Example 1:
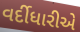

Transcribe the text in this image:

વર્દીધારીએ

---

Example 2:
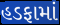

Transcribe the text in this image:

હડફામાં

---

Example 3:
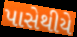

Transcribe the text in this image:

પાસેથીયે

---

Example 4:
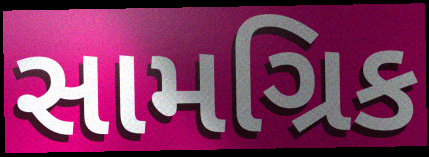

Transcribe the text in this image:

સામગ્રિક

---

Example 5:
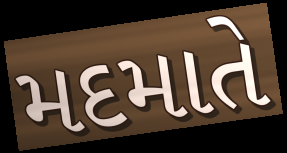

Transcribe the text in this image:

મદમાતે